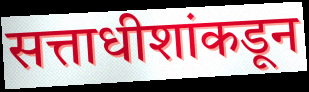
सत्ताधीशांकडून